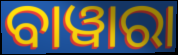
ବାୱାରା